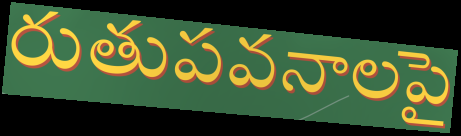
రుతుపవనాలపై